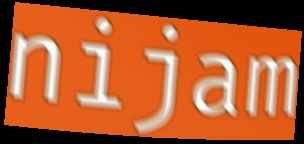
nijam